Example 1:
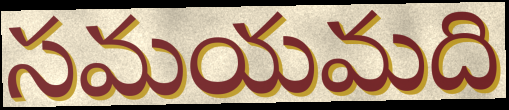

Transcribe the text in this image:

సమయమది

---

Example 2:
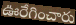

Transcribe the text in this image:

ఊరేగించారు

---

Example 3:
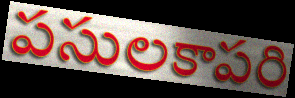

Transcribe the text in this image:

పసులకాపరి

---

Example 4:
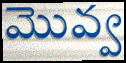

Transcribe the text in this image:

మొవ్వ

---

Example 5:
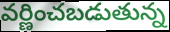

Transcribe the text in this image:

వర్ణించబడుతున్న